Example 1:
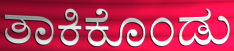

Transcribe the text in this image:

ತಾಕಿಕೊಂಡು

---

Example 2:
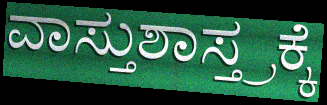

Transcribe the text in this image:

ವಾಸ್ತುಶಾಸ್ತ್ರಕ್ಕೆ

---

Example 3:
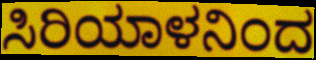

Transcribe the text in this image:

ಸಿರಿಯಾಳನಿಂದ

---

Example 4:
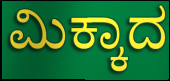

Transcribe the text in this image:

ಮಿಕ್ಕಾದ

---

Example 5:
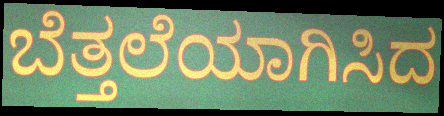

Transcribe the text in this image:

ಬೆತ್ತಲೆಯಾಗಿಸಿದ